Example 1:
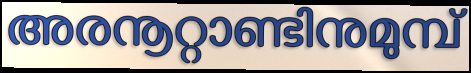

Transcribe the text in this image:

അരനൂറ്റാണ്ടിനുമുമ്പ്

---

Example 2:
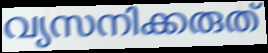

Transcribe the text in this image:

വ്യസനിക്കരുത്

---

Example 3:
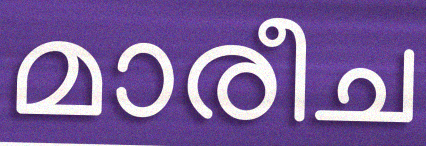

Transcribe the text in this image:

മാരീച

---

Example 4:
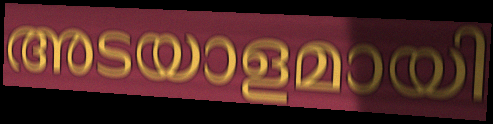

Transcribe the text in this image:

അടയാളമായി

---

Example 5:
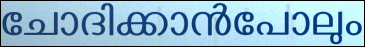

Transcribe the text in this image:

ചോദിക്കാൻപോലും